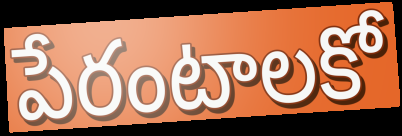
పేరంటాలకో